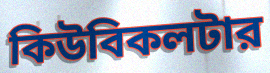
কিউবিকলটার